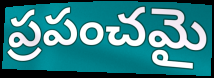
ప్రపంచమై